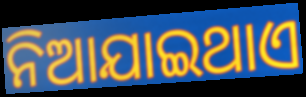
ନିଆଯାଇଥାଏ